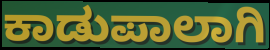
ಕಾಡುಪಾಲಾಗಿ